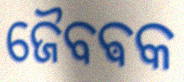
ଜୈବଵକ